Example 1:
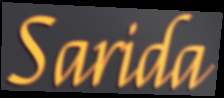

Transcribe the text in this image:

Sarida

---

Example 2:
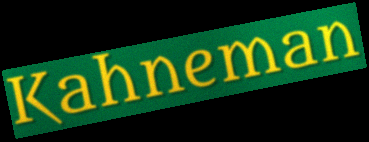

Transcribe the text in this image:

Kahneman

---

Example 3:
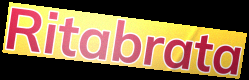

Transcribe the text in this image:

Ritabrata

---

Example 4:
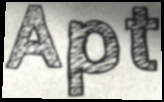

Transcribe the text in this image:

Apt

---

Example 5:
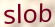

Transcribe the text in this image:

slob